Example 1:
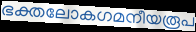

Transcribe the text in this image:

ഭക്തലോകഗമനീയരൂപ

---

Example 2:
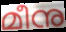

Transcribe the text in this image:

മീനു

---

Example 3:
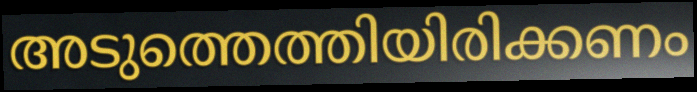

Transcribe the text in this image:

അടുത്തെത്തിയിരിക്കണം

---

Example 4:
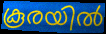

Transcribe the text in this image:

കൂരയിൽ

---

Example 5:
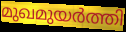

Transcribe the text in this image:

മുഖമുയർത്തി